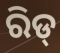
ରିଡ୍